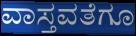
ವಾಸ್ತವತೆಗೂ